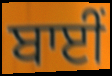
ਬਾਈਂ